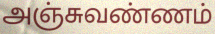
அஞ்சுவண்ணம்